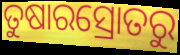
ତୁଷାରସ୍ରୋତରୁ